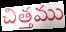
చిత్తము